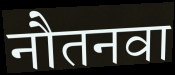
नौतनवा